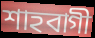
শাহবাগী